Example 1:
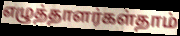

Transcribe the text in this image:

எழுத்தாளர்கள்தாம்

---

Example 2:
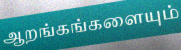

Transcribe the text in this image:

ஆறங்கங்களையும்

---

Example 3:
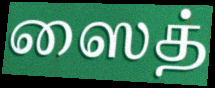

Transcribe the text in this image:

ஸைத்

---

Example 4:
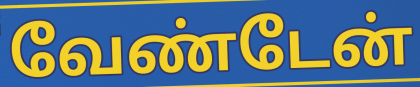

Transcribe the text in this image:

வேண்டேன்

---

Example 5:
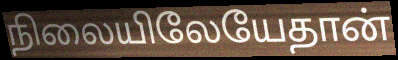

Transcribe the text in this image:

நிலையிலேயேதான்